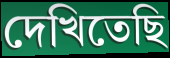
দেখিতেছি